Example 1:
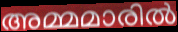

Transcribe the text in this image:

അമ്മമാരിൽ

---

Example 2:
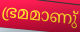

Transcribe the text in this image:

ഭ്രമമാണു്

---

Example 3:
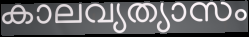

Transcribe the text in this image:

കാലവ്യത്യാസം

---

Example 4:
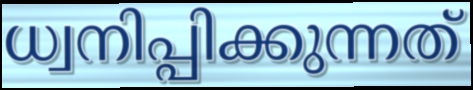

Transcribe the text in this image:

ധ്വനിപ്പിക്കുന്നത്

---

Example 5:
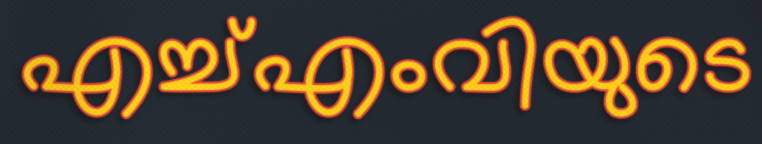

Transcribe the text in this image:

എച്ച്എംവിയുടെ